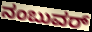
ನಂಬುವರ್